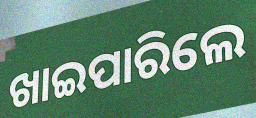
ଖାଇପାରିଲେ